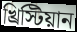
খ্রিস্টিয়ান